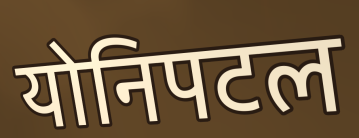
योनिपटल